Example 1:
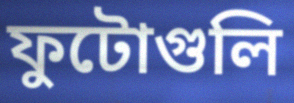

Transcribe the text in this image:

ফুটোগুলি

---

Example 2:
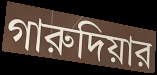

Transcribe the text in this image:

গারুদিয়ার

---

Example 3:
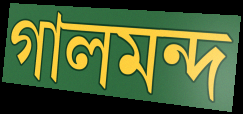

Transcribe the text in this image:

গালমন্দ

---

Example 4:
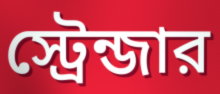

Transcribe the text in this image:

স্ট্রেন্জার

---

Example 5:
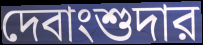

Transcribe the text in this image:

দেবাংশুদার